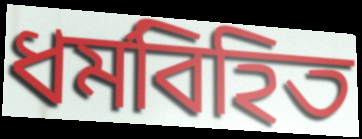
ধর্মবিহিত